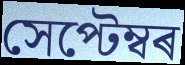
সেপ্টেম্বৰ